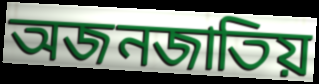
অজনজাতিয়